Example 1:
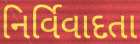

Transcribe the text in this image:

નિર્વિવાદતા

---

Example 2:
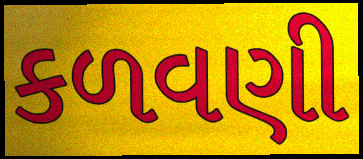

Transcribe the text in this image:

કળવણી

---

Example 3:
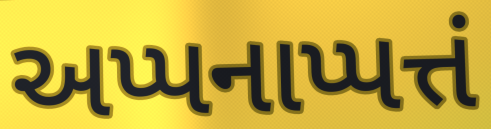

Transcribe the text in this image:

અપ્પનાપ્પત્તં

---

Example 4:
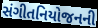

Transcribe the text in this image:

સંગીતનિયોજનની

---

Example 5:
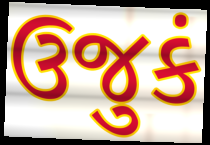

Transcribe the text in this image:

ઉજુકં